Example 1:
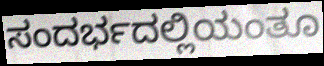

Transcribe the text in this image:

ಸಂದರ್ಭದಲ್ಲಿಯಂತೂ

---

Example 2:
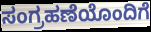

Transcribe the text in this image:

ಸಂಗ್ರಹಣೆಯೊಂದಿಗೆ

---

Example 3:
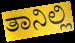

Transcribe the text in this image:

ತಾನಿಲ್ಲಿ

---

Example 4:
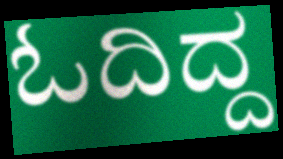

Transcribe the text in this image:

ಓದಿದ್ದ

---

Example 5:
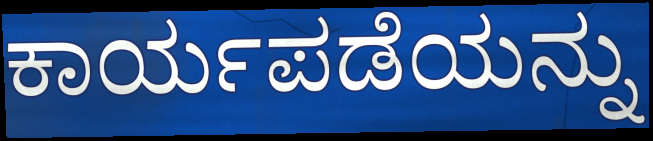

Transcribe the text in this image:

ಕಾರ್ಯಪಡೆಯನ್ನು